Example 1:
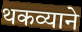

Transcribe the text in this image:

थकव्याने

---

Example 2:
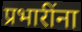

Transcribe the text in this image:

प्रभारींना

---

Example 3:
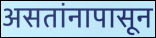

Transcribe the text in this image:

असतांनापासून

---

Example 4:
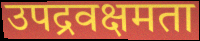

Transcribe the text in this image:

उपद्रवक्षमता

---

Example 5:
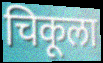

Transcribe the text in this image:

चिकूला